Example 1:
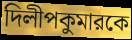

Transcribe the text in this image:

দিলীপকুমারকে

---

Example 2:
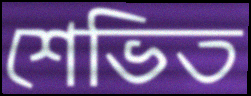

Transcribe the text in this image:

শেভিত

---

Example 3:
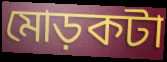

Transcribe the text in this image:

মোড়কটা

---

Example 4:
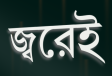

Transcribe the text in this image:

জ্বরেই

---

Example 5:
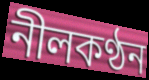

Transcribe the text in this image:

নীলকণ্ঠন